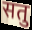
सतु